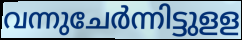
വന്നുചേർന്നിട്ടുളള